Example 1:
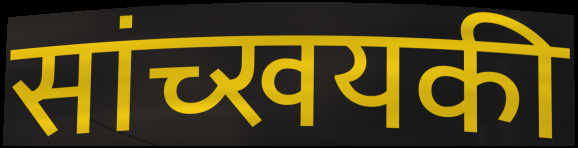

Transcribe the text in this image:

सांच्खयकी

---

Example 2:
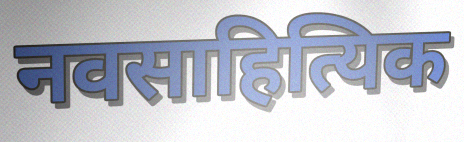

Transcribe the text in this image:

नवसाहित्यिक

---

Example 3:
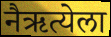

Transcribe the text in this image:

नैऋत्येला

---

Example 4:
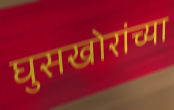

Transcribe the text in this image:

घुसखोरांच्या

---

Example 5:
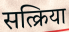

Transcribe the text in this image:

सत्क्रिया